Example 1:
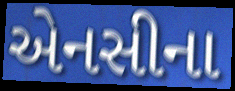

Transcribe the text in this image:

એનસીના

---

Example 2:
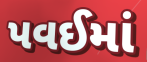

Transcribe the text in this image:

પવઈમાં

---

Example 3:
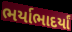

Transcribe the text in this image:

ભર્યાભાદર્યાં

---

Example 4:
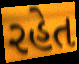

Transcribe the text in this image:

રહેત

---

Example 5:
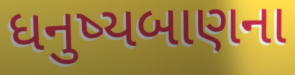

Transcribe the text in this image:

ધનુષ્યબાણના